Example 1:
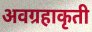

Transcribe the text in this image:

अवग्रहाकृती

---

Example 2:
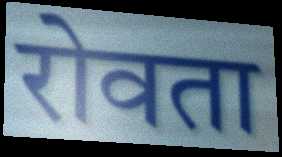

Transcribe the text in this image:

रोवता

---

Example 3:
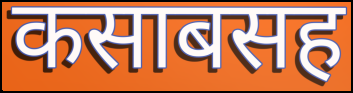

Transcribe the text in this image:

कसाबसह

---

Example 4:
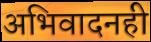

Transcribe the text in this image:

अभिवादनही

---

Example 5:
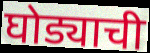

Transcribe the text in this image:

घोड्याची